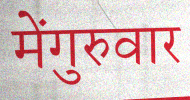
मेंगुरुवार